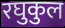
रघुकुल